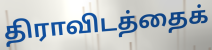
திராவிடத்தைக்